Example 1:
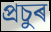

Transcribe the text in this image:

প্ৰচুৰ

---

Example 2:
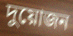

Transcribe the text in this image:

দুয়োজন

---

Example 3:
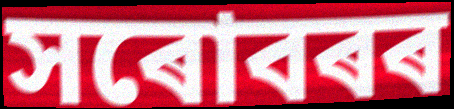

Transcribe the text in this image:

সৰোবৰৰ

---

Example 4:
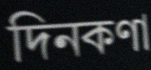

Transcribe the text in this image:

দিনকণা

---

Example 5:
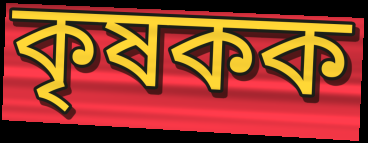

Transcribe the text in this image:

কৃষকক